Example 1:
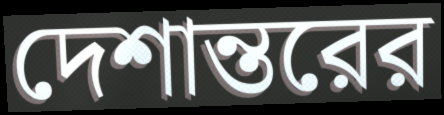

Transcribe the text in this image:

দেশান্তরের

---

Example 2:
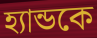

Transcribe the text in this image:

হ্যান্ডকে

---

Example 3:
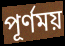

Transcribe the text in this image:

পূর্ণময়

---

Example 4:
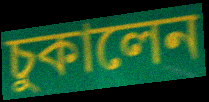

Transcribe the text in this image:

চুকালেন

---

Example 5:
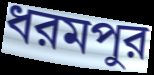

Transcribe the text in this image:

ধরমপুর